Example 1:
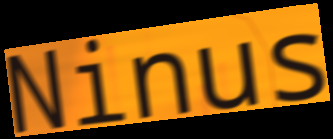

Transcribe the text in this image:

Ninus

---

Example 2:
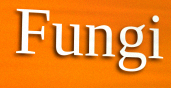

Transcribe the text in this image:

Fungi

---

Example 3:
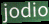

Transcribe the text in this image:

jodio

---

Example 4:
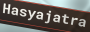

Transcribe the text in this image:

Hasyajatra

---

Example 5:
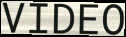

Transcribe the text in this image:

VIDEO